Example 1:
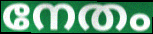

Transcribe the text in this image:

നേതം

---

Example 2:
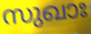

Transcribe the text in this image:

സുഖാഃ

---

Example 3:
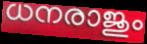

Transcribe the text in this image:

ധനരാജും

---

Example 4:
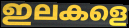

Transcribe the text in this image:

ഇലകളെ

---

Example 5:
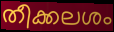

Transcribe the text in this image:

തീക്കലശം